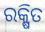
ରକ୍ଷିତ